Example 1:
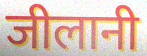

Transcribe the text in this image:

जीलानी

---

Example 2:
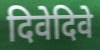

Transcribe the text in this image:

दिवेदिवे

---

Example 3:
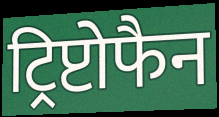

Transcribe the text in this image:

ट्रिप्टोफैन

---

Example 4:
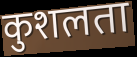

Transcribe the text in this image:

कुशलता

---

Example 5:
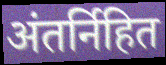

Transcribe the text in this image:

अंतर्निहित